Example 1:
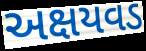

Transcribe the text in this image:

અક્ષયવડ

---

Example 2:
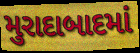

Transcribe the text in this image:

મુરાદાબાદમાં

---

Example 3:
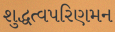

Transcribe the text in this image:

શુદ્ધત્વપરિણમન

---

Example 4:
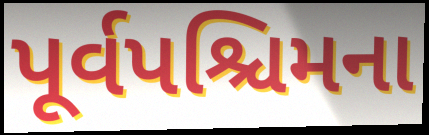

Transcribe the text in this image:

પૂર્વપશ્ચિમના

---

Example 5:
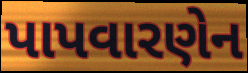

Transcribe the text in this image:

પાપવારણેન